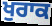
ਖੁਰਾਕ